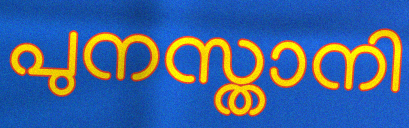
പുനസ്താനി